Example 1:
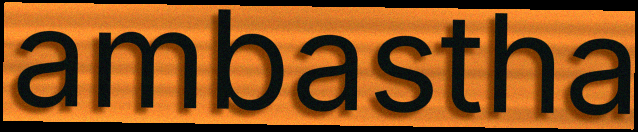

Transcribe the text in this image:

ambastha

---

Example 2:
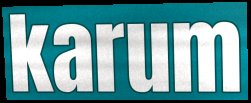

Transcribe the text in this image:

karum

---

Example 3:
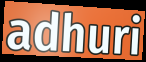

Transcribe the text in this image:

adhuri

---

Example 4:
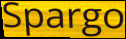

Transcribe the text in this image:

Spargo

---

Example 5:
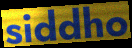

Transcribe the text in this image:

siddho